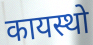
कायस्थो